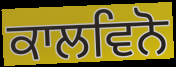
ਕਾਲਵਿਨੋ